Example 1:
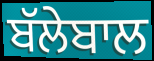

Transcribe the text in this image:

ਬੱਲੇਬਾਲ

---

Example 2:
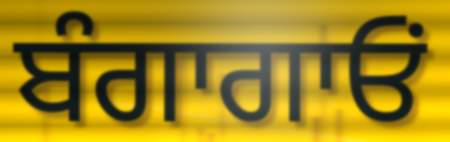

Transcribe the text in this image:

ਬੰਗਾਗਾਓਂ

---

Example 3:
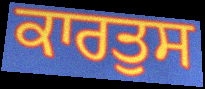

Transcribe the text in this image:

ਕਾਰਤੁਸ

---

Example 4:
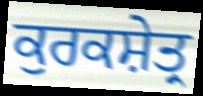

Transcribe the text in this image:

ਕੁਰਕਸ਼ੇਤ੍ਰ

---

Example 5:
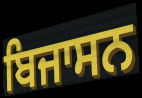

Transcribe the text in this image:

ਬਿਜਾਸਨ